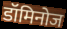
डॉमिनोज